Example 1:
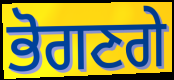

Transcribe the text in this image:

ਭੋਗਣਗੇ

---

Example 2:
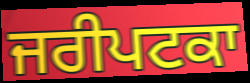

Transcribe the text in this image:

ਜਰੀਪਟਕਾ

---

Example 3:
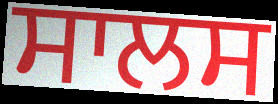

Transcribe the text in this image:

ਸਾਲਸ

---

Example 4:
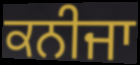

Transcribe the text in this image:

ਕਨੀਜਾ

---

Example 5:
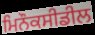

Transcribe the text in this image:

ਮਿਨੌਕਸੀਡੀਲ